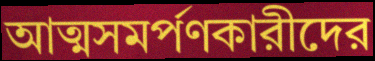
আত্মসমর্পণকারীদের